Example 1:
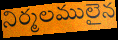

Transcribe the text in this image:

నిర్మలములైన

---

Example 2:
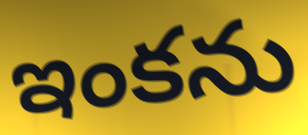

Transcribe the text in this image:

ఇంకను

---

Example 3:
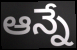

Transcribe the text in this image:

ఆన్నే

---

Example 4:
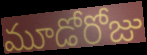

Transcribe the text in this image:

మూడోరోజు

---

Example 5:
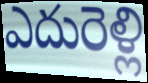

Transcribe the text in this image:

ఎదురెళ్లి